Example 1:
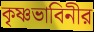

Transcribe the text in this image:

কৃষ্ণভাবিনীর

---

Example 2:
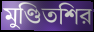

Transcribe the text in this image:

মুণ্ডিতশির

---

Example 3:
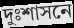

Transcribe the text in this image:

দুঃশাসনে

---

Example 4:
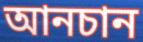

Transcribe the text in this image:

আনচান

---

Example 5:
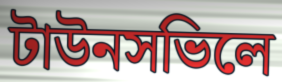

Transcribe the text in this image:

টাউনসভিলে